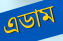
এডাম